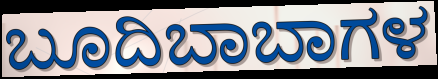
ಬೂದಿಬಾಬಾಗಳ